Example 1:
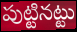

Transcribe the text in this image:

పుట్టినట్టు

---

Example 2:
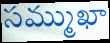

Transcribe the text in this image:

సమ్ముఖా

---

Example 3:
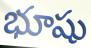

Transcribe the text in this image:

భూషు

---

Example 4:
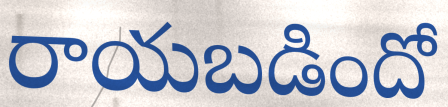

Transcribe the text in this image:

రాయబడిందో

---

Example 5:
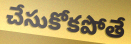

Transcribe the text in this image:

చేసుకోకపోతే